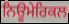
ਨਿਊਮੇਰਿਕਲ